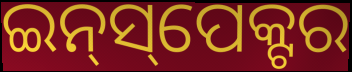
ଇନ୍‍ସ୍‌ପେକ୍ଟର